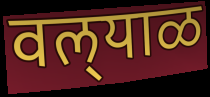
वल्याळ